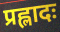
प्रह्लादः